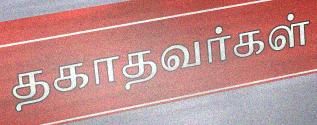
தகாதவர்கள்